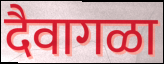
दैवागळा